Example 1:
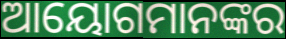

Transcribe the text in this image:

ଆୟୋଗମାନଙ୍କର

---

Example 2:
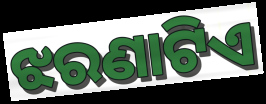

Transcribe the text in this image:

ଝରଣାଟିଏ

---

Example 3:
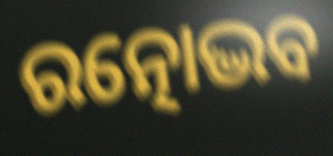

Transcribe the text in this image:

ରତ୍ନୋଦ୍ଭବ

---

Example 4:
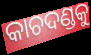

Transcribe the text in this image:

କାଚଦଣ୍ଡକୁ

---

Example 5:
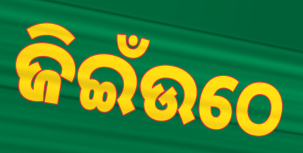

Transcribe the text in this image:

ଜିଇଁଉଠେ